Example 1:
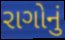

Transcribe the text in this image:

રાગોનું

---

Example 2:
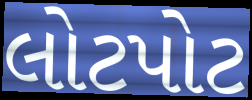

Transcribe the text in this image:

લોટપોટ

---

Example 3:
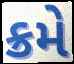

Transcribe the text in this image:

ક્રમે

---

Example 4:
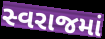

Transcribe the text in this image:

સ્વરાજમાં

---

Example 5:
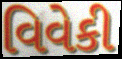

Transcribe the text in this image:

વિવેકી